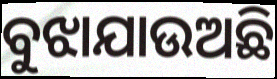
ବୁଝାଯାଉଅଛି